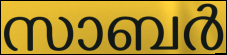
സാബർ